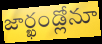
జార్ఖండ్లోనూ